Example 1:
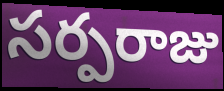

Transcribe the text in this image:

సర్పరాజు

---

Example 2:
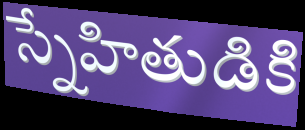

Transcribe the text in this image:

స్నేహితుడికి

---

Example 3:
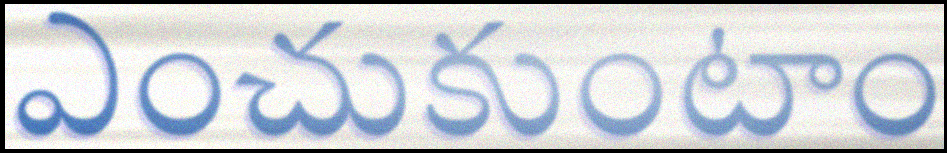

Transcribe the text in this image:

ఎంచుకుంటాం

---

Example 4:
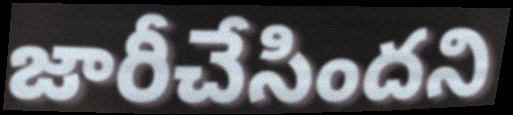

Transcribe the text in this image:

జారీచేసిందని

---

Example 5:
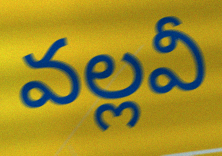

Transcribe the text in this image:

వల్లవీ